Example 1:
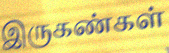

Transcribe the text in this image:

இருகண்கள்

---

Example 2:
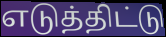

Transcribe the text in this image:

எடுத்திட்டு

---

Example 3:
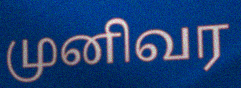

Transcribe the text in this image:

முனிவர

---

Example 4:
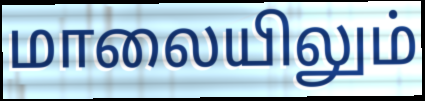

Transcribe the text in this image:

மாலையிலும்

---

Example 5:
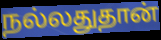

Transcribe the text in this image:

நல்லதுதான்